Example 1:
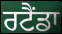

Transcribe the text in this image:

ਰਟੈਂਡਾ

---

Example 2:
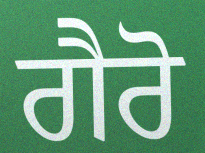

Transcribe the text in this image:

ਗੈਰੋ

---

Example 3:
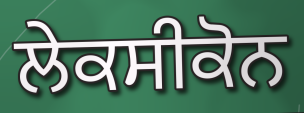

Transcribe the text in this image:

ਲੇਕਸੀਕੋਨ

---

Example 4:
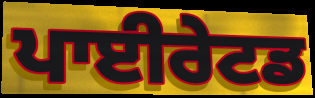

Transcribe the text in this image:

ਪਾਈਰੇਟਡ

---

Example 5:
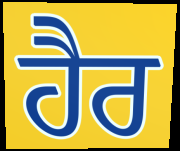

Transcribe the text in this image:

ਹੈਰ